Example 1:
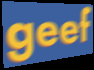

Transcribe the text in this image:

geef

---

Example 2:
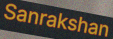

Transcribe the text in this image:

Sanrakshan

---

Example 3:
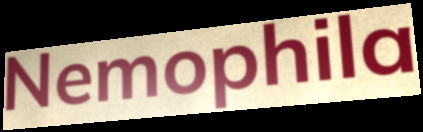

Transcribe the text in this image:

Nemophila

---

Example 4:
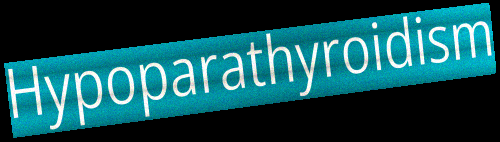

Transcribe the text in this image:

Hypoparathyroidism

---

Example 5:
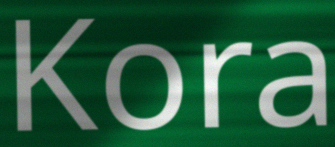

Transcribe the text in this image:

Kora